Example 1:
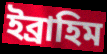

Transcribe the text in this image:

ইব্রাহিম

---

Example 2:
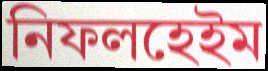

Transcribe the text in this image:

নিফলহেইম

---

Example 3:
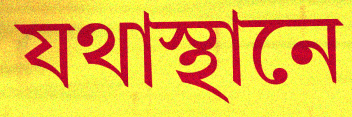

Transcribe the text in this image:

যথাস্থানে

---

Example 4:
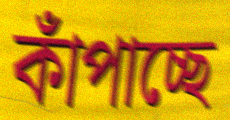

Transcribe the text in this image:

কাঁপাচ্ছে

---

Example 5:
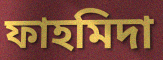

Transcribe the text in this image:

ফাহমিদা